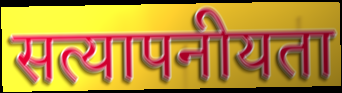
सत्यापनीयता